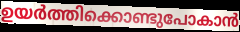
ഉയർത്തിക്കൊണ്ടുപോകാൻ